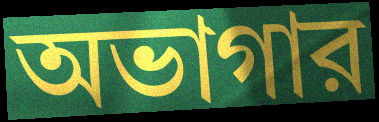
অভাগার